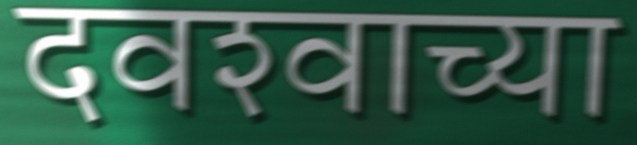
दवश्वाच्या